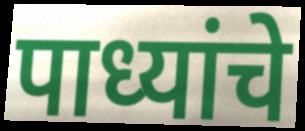
पाध्यांचे